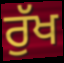
ਰੁੱਖ